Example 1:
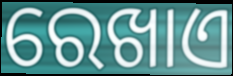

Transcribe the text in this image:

ରେଖାଏ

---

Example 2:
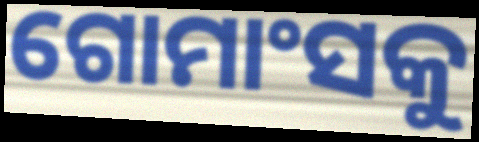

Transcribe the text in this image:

ଗୋମାଂସକୁ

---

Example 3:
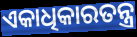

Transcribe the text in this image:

ଏକାଧିକାରତନ୍ତ୍ର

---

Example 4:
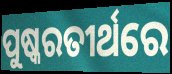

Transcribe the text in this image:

ପୁଷ୍କରତୀର୍ଥରେ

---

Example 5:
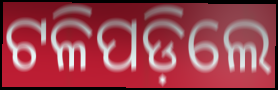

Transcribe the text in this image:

ଟଳିପଡ଼ିଲେ